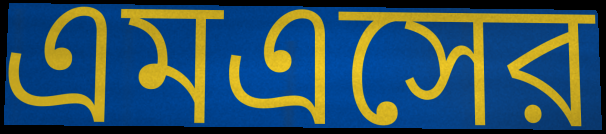
এমএসের